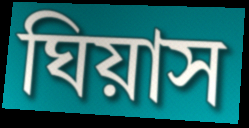
ঘিয়াস